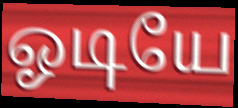
ஓடியே